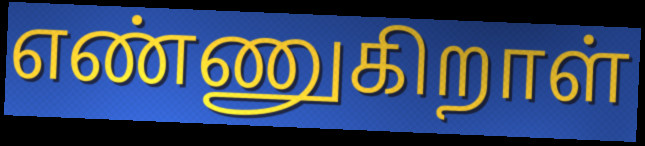
எண்ணுகிறாள்